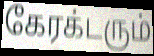
கேரக்டரும்